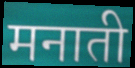
मनाती